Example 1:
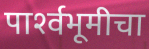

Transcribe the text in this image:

पार्श्वभूमीचा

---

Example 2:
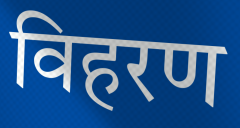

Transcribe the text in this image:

विहरण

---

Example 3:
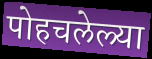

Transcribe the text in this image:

पोहचलेल्या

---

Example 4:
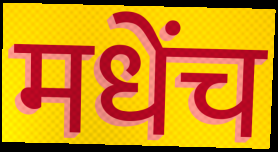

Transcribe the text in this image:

मधेंच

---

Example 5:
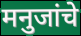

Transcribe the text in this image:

मनुजांचे